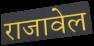
राजावेल